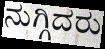
ನುಗ್ಗಿದರು